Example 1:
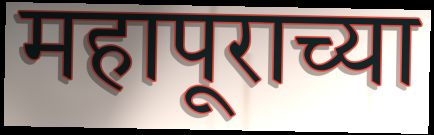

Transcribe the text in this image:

महापूराच्या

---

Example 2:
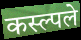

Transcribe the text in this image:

कस्ल्पले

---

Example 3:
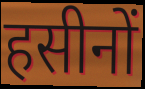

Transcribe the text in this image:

हसीनों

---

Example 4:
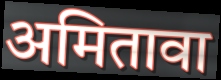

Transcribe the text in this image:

अमितावा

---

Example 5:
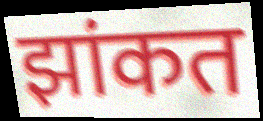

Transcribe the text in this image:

झांकत